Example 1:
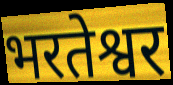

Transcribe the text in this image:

भरतेश्वर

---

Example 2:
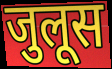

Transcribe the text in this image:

जुलूस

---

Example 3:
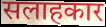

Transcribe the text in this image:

सलाहकार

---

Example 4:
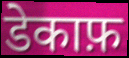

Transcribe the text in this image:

डेकाफ़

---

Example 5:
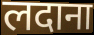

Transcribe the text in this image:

लदाना